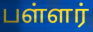
பள்ளர்